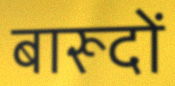
बारूदों